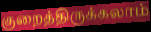
குறைத்திருக்கலாம்